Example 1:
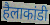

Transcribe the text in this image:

हैलाकांडी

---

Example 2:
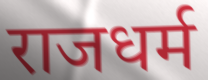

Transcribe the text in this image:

राजधर्म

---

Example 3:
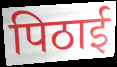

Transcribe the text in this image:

पिठाई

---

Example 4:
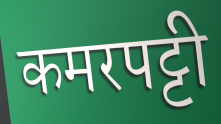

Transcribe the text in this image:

कमरपट्टी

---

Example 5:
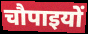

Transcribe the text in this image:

चौपाइयों